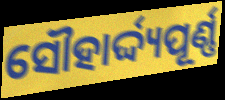
ସୌହାର୍ଦ୍ଦ୍ୟପୂର୍ଣ୍ଣ